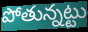
పోతున్నట్టు